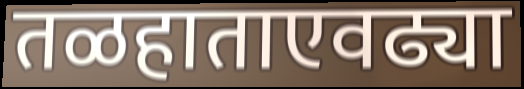
तळहाताएवढ्या